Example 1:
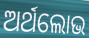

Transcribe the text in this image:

ଅର୍ଥଲୋଭ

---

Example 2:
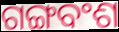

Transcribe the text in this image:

ଗଙ୍ଗବଂଶ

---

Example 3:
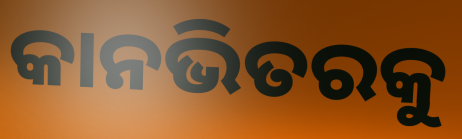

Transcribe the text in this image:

କାନଭିତରକୁ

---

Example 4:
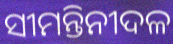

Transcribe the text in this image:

ସୀମନ୍ତିନୀଦଳ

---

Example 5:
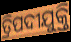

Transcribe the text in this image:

ତ୍ରିପଦୀଯୁକ୍ତି